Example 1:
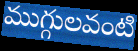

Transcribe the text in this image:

ముగ్గులవంటి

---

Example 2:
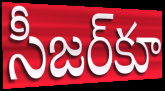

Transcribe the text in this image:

సీజర్‌కూ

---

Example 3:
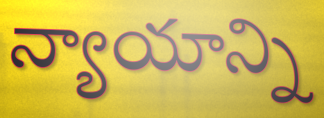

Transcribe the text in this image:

న్యాయాన్ని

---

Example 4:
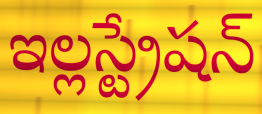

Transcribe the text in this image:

ఇల్లస్ట్రేషన్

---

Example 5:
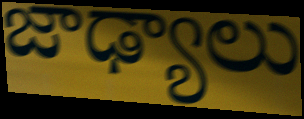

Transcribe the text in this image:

జాఢ్యాలు